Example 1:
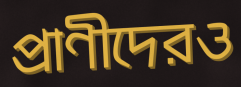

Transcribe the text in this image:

প্রাণীদেরও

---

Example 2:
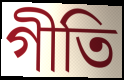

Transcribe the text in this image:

গীতি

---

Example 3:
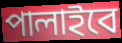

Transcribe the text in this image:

পালাইবে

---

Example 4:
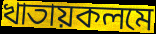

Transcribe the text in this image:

খাতায়কলমে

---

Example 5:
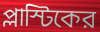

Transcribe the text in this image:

প্লাস্টিকের